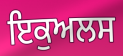
ਇਕੁਅਲਸ